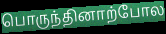
பொருந்தினாற்போல